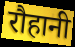
रौहानी